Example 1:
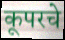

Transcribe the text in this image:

कूपरचे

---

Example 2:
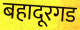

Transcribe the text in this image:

बहादूरगड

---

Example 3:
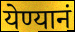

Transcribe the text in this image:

येण्यानं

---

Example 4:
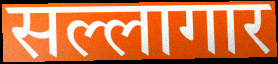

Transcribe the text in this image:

सल्‍लागार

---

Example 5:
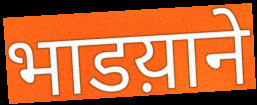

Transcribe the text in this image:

भाडय़ाने